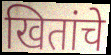
खितांचे